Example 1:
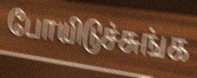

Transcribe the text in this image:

போயிடுச்சுங்க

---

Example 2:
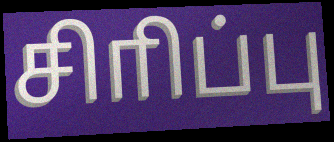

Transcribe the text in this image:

சிரிப்பு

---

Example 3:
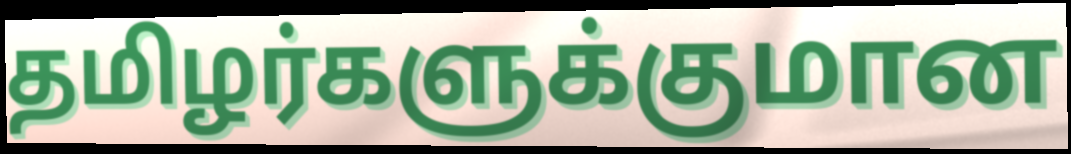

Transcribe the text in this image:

தமிழர்களுக்குமான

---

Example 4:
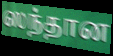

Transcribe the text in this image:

ஸந்தான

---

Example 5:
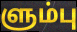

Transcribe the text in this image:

ளும்பு